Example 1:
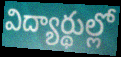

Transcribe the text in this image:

విద్యార్థుల్లో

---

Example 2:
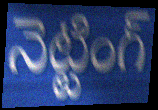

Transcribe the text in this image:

నెట్టింగ్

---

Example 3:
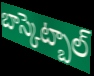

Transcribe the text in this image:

బాస్కెట్బాల్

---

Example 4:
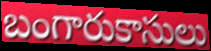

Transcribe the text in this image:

బంగారుకాసులు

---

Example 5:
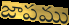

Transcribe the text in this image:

జాపము